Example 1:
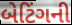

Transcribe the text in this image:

બેટિંગની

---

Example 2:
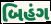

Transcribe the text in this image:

બિહંગ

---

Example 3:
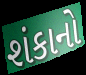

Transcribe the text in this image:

શંકાનો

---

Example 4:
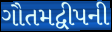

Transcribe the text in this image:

ગૌતમદ્વીપની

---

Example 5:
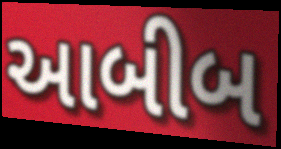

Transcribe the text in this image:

આબીબ